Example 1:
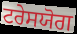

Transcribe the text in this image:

ਟਰੇਸਯੋਗ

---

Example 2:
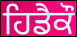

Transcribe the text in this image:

ਹਿਡੈਕੌ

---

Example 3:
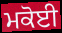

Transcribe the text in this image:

ਮਕੋਈ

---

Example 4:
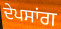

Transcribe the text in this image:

ਦੇਪਸਾਂਗ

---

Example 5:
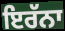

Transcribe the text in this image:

ਇਰੱਨਾ